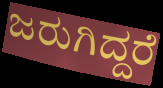
ಜರುಗಿದ್ದರೆ